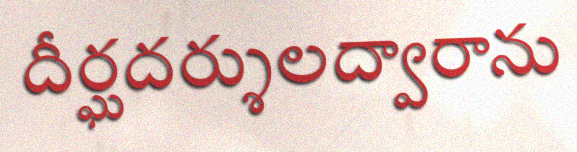
దీర్ఘదర్శులద్వారాను